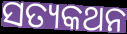
ସତ୍ୟକଥନ